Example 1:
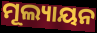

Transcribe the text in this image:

ମୂଲ୍ୟାୟନ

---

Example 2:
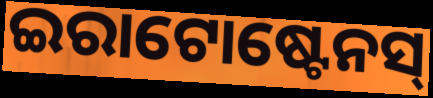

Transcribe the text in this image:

ଇରାଟୋଷ୍ଟେନସ୍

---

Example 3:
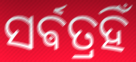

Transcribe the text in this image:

ସର୍ଵତ୍ରହିଁ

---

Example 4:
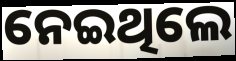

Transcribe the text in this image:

ନେଇଥିଲେ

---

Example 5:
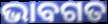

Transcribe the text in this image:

ଭାବଗତ